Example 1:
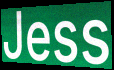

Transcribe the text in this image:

Jess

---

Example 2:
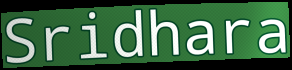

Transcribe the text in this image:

Sridhara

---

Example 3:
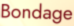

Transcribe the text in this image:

Bondage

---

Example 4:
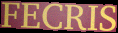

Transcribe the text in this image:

FECRIS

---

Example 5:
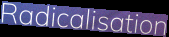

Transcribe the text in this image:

Radicalisation